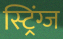
स्ट्रिंग्ज